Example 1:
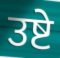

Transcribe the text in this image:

उष्टे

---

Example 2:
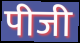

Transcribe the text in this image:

पीजी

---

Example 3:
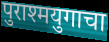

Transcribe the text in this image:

पुराश्मयुगाचा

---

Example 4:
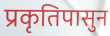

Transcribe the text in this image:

प्रकृतिपासुन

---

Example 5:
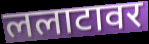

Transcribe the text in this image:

ललाटावर